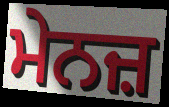
ਮੇਨਜ਼